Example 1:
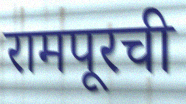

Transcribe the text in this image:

रामपूरची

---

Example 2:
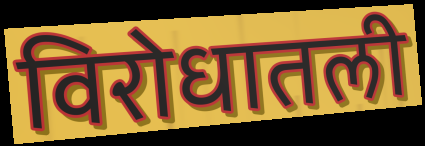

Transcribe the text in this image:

विरोधातली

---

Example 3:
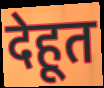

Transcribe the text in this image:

देहूत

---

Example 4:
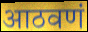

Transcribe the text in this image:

आठवणं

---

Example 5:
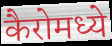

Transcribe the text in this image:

कैरोमध्ये